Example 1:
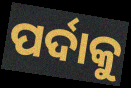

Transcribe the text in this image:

ପର୍ଦାକୁ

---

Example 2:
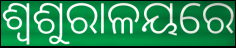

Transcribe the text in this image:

ଶ୍ୱଶୁରାଳୟରେ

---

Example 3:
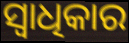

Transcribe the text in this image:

ସ୍ଵାଧିକାର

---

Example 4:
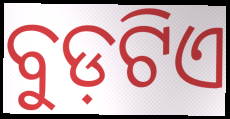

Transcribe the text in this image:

ବୁଡ଼ଟିଏ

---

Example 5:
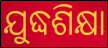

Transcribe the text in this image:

ଯୁଦ୍ଧଶିକ୍ଷା